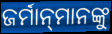
ଜର୍ମାନ୍‌ମାନଙ୍କୁ